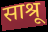
साश्रू